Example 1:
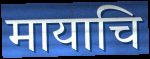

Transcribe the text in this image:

मायाचि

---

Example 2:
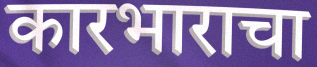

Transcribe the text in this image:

कारभाराचा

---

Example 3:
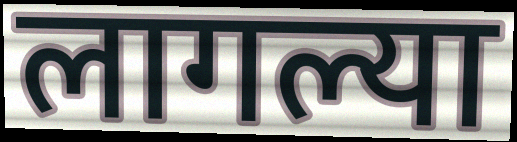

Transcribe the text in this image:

लागल्या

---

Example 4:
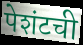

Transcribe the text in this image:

पेशंटची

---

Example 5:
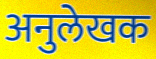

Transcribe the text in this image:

अनुलेखक